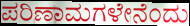
ಪರಿಣಾಮಗಳೇನೆಂದು